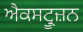
ਐਕਸਟ੍ਰੂਜ਼ਨ